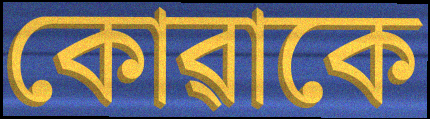
কোৱাকে